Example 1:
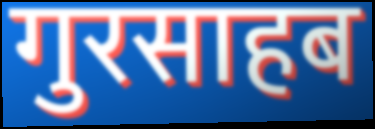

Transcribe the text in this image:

गुरसाहब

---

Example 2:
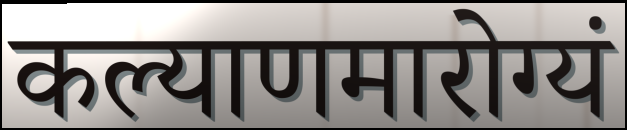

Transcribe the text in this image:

कल्याणमारोग्यं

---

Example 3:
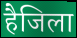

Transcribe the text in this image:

हैजिला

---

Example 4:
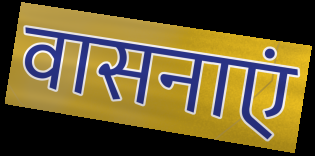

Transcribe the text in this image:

वासनाएं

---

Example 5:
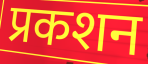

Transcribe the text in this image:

प्रकशन